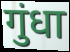
गुंधा